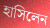
হাসিলেন